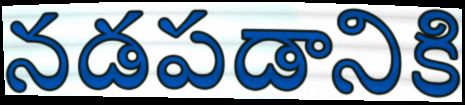
నడపడానికి